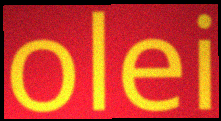
olei